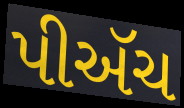
પીઍચ